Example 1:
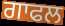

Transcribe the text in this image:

ਗਾਫਲ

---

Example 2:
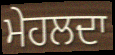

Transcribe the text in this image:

ਮੇਹਲਦਾ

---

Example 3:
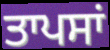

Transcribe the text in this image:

ਤਾਪਸਾਂ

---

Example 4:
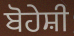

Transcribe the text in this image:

ਬੋਹੇਸ਼ੀ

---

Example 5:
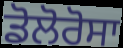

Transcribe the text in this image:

ਡੋਲੋਰੋਸਾ